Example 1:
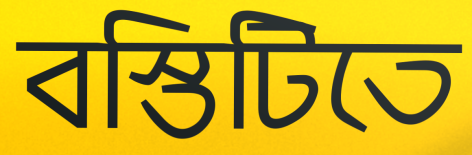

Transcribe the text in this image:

বস্তিটিতে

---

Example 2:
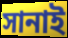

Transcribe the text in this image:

সানাই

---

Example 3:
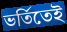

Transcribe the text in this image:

ভর্তিতেই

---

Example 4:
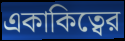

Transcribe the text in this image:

একাকিত্বের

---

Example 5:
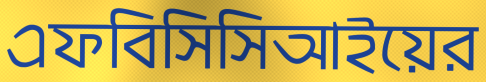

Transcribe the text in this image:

এফবিসিসিআইয়ের